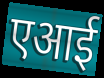
एआई